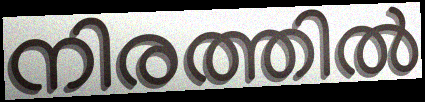
നിരത്തിൽ